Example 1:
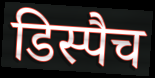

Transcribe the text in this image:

डिस्पैच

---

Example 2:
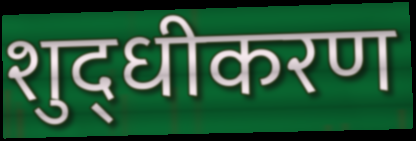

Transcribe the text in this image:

शुद्धीकरण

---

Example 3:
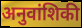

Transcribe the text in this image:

अनुवांशिकी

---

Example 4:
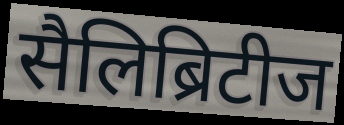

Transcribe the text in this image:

सैलिब्रिटीज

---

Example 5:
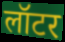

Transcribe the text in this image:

लॉटर